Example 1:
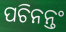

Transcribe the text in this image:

ପଚିନନ୍ତଂ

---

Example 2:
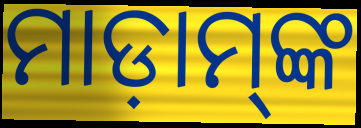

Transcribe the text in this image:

ମାଡ଼ାମ୍‌ଙ୍କ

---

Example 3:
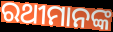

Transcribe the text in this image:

ରଥୀମାନଙ୍କ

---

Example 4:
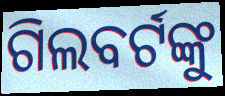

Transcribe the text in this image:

ଗିଲବର୍ଟଙ୍କୁ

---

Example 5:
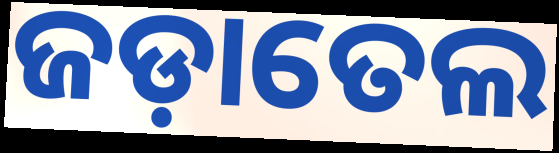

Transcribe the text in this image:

ଜଡ଼ାତେଲ